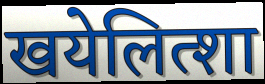
खयेलित्शा